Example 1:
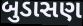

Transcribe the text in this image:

બુડાસણ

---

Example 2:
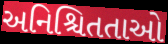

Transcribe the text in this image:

અનિશ્ચિતતાઓ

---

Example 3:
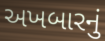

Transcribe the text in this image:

અખબારનું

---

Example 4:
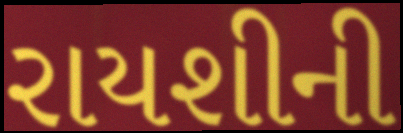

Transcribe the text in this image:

રાયશીની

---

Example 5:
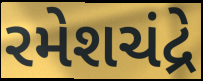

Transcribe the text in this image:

રમેશચંદ્રે